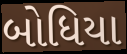
બોધિયા